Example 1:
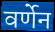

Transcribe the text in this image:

वर्णेन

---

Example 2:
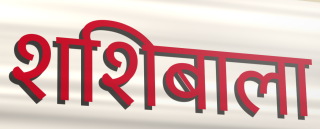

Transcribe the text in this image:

शशिबाला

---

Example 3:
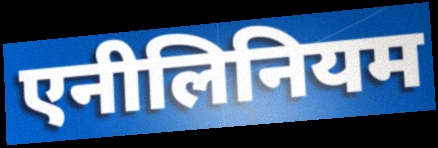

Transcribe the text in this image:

एनीलिनियम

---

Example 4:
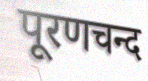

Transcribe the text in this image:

पूरणचन्द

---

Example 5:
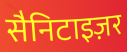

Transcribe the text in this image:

सैनिटाइज़र